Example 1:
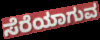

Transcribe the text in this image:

ಸೆರೆಯಾಗುವ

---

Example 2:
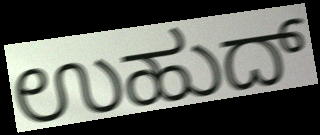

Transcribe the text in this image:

ಉಹುದ್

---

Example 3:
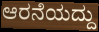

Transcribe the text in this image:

ಆರನೆಯದ್ದು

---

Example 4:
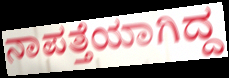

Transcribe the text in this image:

ನಾಪತ್ತೆಯಾಗಿದ್ದ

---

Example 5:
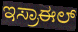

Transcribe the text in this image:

ಇಸ್ರಾಈಲ್